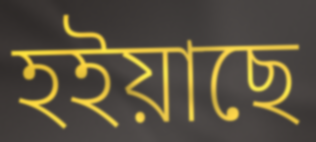
হইয়াছে